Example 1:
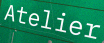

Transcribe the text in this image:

Atelier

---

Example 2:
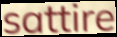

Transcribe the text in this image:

sattire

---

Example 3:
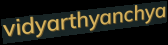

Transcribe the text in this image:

vidyarthyanchya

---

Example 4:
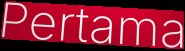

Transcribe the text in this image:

Pertama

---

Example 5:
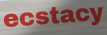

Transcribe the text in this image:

ecstacy